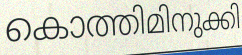
കൊത്തിമിനുക്കി